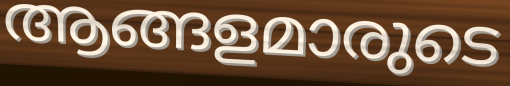
ആങ്ങളമാരുടെ